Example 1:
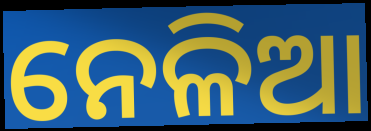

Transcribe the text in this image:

ନେଳିଆ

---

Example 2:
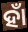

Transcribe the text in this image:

ହାଁ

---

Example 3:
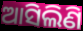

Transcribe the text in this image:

ଆସିଲିଣି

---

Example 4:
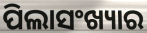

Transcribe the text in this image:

ପିଲାସଂଖ୍ୟାର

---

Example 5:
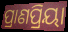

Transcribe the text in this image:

ପ୍ରାଣପ୍ରିୟା